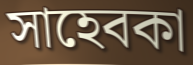
সাহেবকা